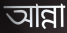
আন্না